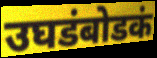
उघडंबोडकं